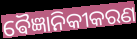
ଵୈଜ୍ଞାନିକୀକରଣ